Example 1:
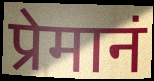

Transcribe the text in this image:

प्रेमानं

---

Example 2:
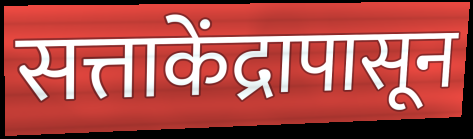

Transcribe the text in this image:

सत्ताकेंद्रापासून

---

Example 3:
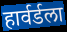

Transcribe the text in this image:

हार्वर्डला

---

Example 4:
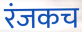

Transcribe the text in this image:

रंजकच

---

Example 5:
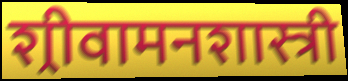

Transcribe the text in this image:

श्रीवामनशास्त्री